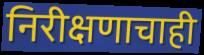
निरीक्षणाचाही